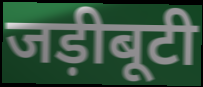
जड़ीबूटी